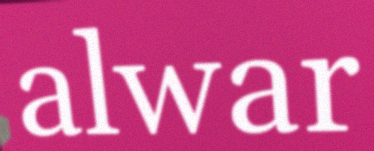
alwar